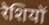
रेशियों